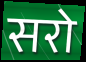
सरो